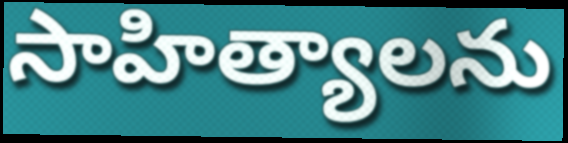
సాహిత్యాలను